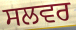
ਸਲਵਰ